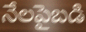
నేలపైబడి